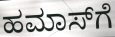
ಹಮಾಸ್‌ಗೆ